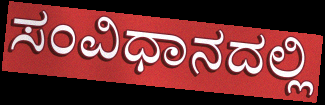
ಸಂವಿಧಾನದಲ್ಲಿ